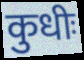
कुधीः